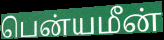
பென்யமீன்